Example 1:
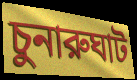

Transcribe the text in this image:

চুনারুঘাট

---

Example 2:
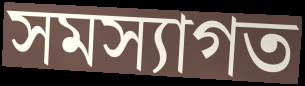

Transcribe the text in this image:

সমস্যাগত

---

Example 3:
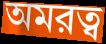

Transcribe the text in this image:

অমরত্ব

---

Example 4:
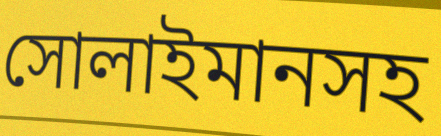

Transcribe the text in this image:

সোলাইমানসহ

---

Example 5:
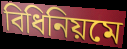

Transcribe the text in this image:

বিধিনিয়মে